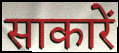
साकारें